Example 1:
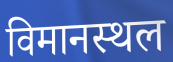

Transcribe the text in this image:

विमानस्थल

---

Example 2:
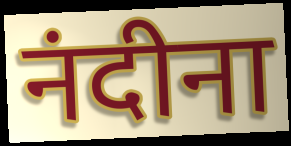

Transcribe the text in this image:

नंदीना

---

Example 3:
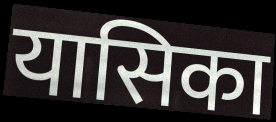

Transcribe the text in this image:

यासिका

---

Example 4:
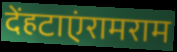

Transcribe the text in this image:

देंहटाएंरामराम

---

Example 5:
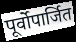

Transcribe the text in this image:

पूर्वोपार्जित